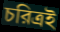
চরিত্রই